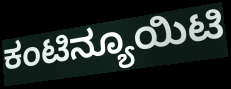
ಕಂಟಿನ್ಯೂಯಿಟಿ